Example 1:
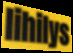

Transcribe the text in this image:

lihilys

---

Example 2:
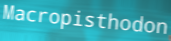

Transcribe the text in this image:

Macropisthodon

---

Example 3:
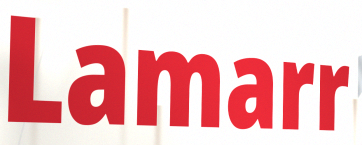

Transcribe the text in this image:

Lamarr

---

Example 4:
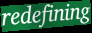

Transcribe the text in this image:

redefining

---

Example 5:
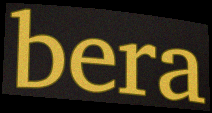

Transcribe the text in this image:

bera